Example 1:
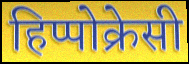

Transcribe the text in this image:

हिप्पोक्रेसी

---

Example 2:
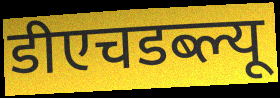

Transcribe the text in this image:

डीएचडब्ल्यू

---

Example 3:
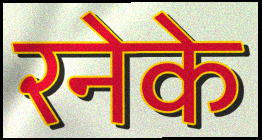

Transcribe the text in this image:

रनेके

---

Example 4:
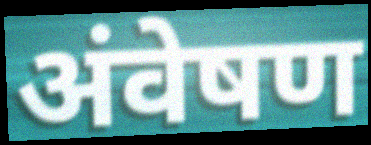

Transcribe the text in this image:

अंवेषण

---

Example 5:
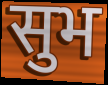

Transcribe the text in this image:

सुभ